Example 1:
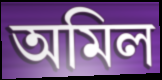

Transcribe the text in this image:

অমিল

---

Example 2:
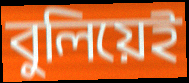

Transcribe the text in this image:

বুলিয়েই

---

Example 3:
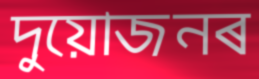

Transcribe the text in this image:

দুয়োজনৰ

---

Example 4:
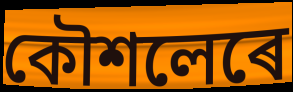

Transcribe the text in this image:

কৌশলেৰে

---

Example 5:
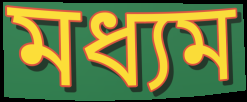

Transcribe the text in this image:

মধ্যম